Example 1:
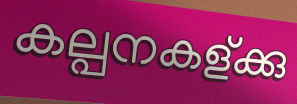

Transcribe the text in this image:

കല്പനകള്ക്കു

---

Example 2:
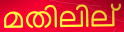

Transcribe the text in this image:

മതിലില്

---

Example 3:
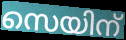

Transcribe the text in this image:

സെയിന്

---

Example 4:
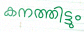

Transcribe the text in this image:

കനത്തിട്ടും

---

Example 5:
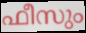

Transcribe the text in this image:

ഫീസും